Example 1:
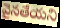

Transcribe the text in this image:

వైనతేయని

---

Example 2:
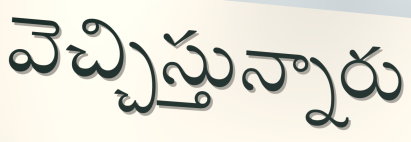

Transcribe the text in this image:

వెచ్చిస్తున్నారు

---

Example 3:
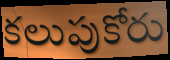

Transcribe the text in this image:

కలుపుకోరు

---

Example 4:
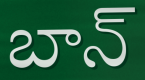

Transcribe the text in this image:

బాన్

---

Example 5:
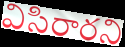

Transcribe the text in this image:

విసిరారని